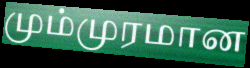
மும்முரமான